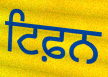
ਟਿਫ਼ਨ